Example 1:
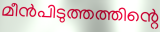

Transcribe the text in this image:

മീൻപിടുത്തത്തിന്റെ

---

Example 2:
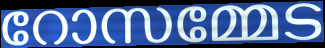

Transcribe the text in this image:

റോസമ്മേട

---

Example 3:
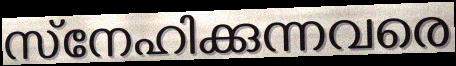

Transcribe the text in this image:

സ്‌നേഹിക്കുന്നവരെ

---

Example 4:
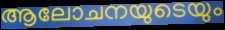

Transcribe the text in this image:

ആലോചനയുടെയും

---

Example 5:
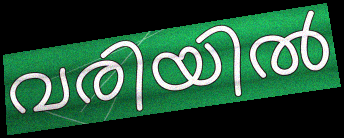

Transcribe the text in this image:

വരിയിൽ